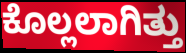
ಕೊಲ್ಲಲಾಗಿತ್ತು